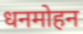
धनमोहन